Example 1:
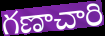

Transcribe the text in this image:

గణాచారి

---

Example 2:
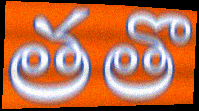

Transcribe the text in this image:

తతొ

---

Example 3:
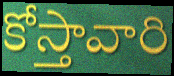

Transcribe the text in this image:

కోస్తావారి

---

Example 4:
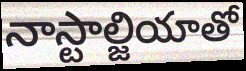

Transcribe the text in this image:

నాస్టాల్జియాతో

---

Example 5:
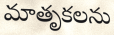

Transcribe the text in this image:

మాతృకలను